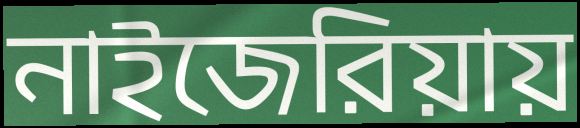
নাইজেরিয়ায়